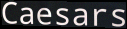
Caesars